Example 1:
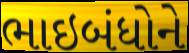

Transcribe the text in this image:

ભાઇબંધોને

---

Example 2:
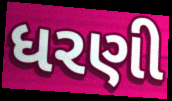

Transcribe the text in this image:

ધરણી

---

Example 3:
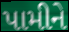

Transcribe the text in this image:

પામીને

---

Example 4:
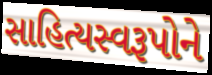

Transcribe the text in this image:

સાહિત્યસ્વરૂપોને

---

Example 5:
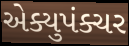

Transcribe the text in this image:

એક્યુપંક્ચર